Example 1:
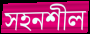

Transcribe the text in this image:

সহনশীল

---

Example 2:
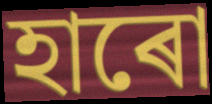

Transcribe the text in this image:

হাৰো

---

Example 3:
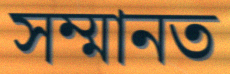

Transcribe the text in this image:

সম্মানত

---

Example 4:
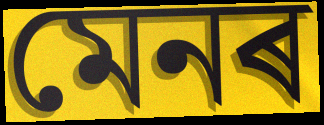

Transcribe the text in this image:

মেনৰ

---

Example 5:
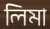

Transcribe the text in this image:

লিমা